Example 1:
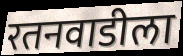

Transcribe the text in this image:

रतनवाडीला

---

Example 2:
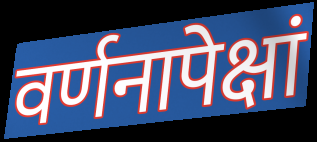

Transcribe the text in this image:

वर्णनापेक्षां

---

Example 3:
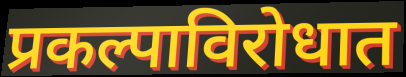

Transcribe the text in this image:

प्रकल्पाविरोधात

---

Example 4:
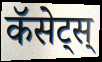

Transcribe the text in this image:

कॅसेट्स्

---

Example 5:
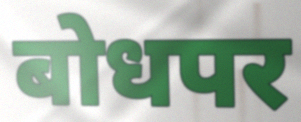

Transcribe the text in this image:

बोधपर